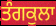
ਤੰਗਕੁਲਾ